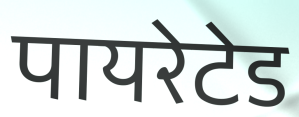
पायरेटेड